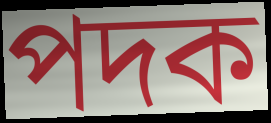
পদক